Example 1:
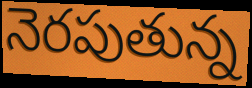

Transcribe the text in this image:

నెరపుతున్న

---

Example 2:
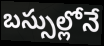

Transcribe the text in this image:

బస్సుల్లోనే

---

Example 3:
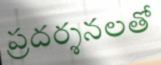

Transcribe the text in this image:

ప్రదర్శనలతో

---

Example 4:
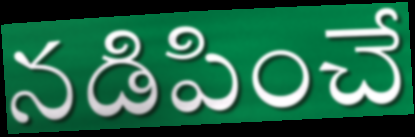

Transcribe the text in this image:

నడిపించే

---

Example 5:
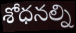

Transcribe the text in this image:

శోధనల్ని